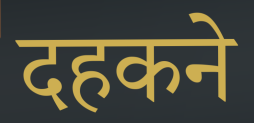
दहकने